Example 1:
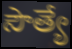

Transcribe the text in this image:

సౌత్యే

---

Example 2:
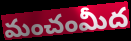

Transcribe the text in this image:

మంచంమీద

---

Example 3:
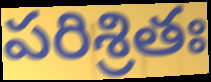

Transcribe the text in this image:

పరిశ్రితః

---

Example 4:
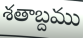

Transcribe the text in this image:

శతాబ్దము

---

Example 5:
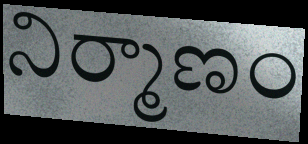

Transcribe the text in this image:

నిర్మాణం